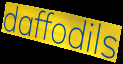
daffodils